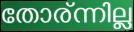
തോര്ന്നില്ല